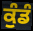
ਕੁੰਡੰ